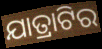
ଯାତ୍ରାଟିର